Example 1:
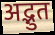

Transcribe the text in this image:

अद्भुत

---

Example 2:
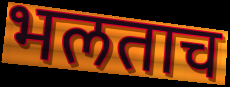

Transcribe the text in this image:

भलताच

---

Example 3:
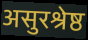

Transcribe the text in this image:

असुरश्रेष्ठ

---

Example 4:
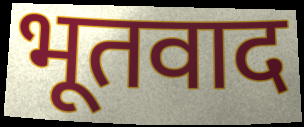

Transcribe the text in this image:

भूतवाद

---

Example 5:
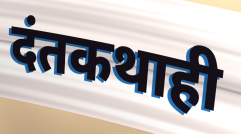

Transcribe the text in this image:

दंतकथाही